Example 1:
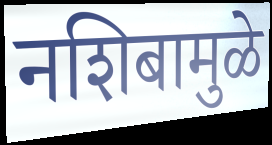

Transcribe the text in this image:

नशिबामुळे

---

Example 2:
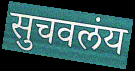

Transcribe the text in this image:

सुचवलंय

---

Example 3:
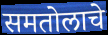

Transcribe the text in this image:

समतोलाचे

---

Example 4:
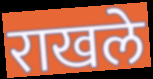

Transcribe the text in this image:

राखले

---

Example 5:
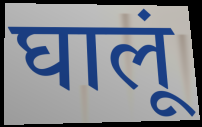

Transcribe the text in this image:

घालूं